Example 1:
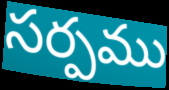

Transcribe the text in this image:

సర్పము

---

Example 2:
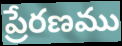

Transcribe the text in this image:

ప్రేరణము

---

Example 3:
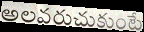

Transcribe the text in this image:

అలవరుచుకుంటే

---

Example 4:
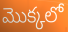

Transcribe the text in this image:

మొక్కలో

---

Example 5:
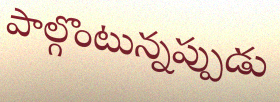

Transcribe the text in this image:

పాల్గొంటున్నప్పుడు